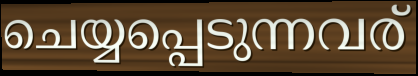
ചെയ്യപ്പെടുന്നവര്